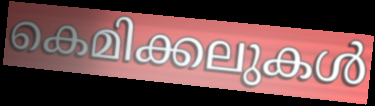
കെമിക്കലുകൾ